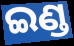
ଇଣ୍ଡ